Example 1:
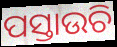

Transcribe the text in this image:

ପସ୍ତାଉଚି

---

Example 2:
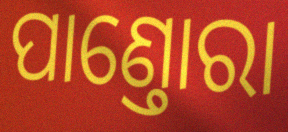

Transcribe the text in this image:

ପାଣ୍ତୋରା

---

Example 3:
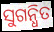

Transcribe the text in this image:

ସୁଗନ୍ଧିତ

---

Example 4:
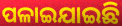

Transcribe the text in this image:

ପଳାଇଯାଇଛି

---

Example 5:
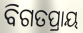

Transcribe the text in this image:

ବିଗତପ୍ରାୟ